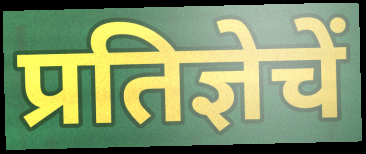
प्रतिज्ञेचें